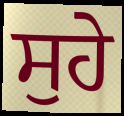
ਸੁਹੇ